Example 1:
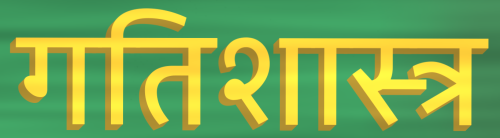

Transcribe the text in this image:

गतिशास्त्र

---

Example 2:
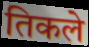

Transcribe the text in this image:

तिकले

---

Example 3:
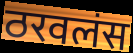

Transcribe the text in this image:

ठरवलंस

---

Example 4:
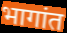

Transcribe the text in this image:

भागांत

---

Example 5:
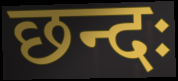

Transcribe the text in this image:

छन्दः